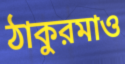
ঠাকুরমাও